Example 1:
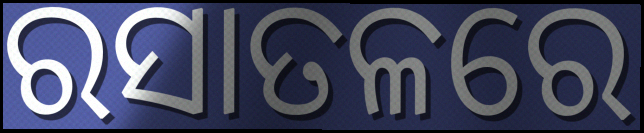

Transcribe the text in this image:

ରସାତଳରେ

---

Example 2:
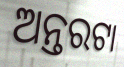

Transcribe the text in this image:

ଅନ୍ତରଟା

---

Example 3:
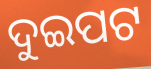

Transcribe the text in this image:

ଦୁଇପଟ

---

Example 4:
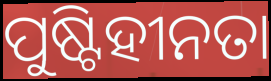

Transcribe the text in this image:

ପୁଷ୍ଟିହୀନତା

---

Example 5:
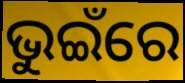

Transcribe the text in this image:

ଭୁଇଁରେ